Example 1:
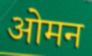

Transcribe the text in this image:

ओमन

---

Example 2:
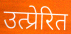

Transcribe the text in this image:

उत्प्रेरित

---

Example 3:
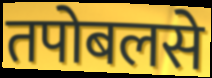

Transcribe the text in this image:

तपोबलसे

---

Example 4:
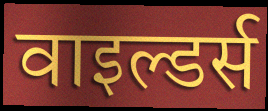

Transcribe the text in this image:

वाइल्डर्स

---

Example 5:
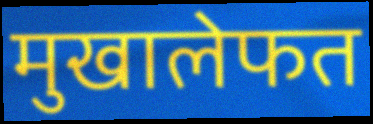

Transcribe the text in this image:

मुखालेफत